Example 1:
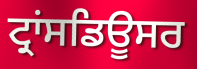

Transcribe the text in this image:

ਟ੍ਰਾਂਸਡਿਊਸਰ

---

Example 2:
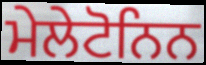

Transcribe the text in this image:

ਮੇਲੇਟੋਨਿਨ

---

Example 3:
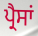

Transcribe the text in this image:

ਪ੍ਰੈਸਾਂ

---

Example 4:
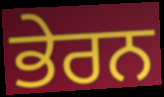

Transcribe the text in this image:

ਭੇਰਨ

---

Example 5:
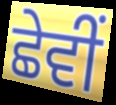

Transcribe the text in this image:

ਛੇਵੀਂ